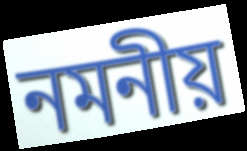
নমনীয়